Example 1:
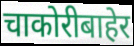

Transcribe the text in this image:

चाकोरीबाहेर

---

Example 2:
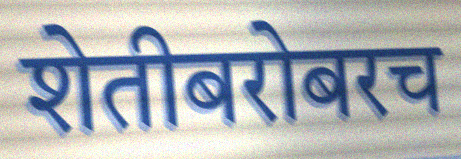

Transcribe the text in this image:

शेतीबरोबरच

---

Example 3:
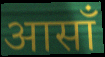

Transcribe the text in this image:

आसाँ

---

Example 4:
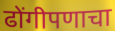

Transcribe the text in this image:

ढोंगीपणाचा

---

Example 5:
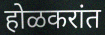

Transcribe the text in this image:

होळकरांत